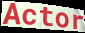
Actor